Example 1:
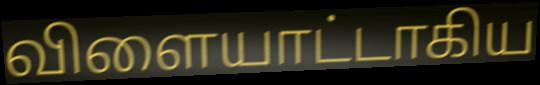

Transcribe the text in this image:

விளையாட்டாகிய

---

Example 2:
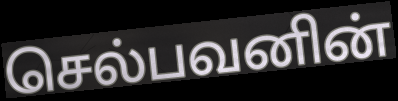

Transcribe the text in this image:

செல்பவனின்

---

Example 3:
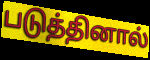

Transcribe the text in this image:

படுத்தினால்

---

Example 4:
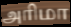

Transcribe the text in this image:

அரிமா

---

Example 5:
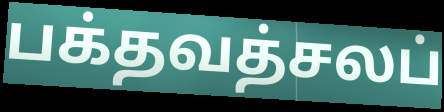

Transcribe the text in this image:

பக்தவத்சலப்